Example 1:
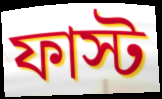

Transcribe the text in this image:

ফাস্ট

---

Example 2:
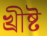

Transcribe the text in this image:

খ্রীষ্ট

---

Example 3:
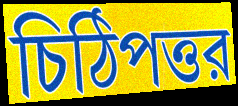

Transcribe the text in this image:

চিঠিপত্তর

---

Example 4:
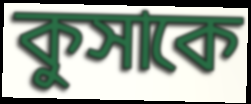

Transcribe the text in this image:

কুসাকে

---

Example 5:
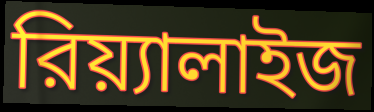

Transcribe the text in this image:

রিয়্যালাইজ